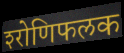
श्रोणिफलक